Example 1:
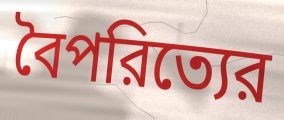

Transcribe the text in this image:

বৈপরিত্যের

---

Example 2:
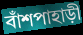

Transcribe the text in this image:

বাঁশপাহাড়ী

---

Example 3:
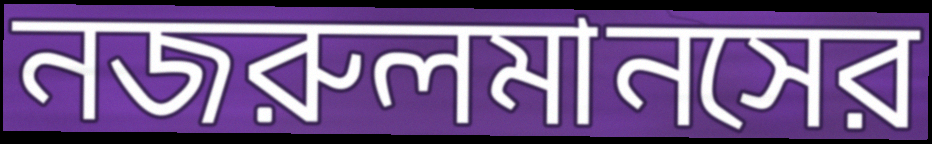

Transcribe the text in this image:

নজরুলমানসের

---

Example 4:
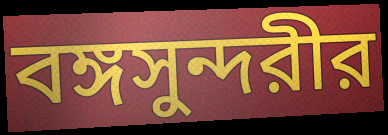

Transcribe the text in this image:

বঙ্গসুন্দরীর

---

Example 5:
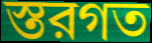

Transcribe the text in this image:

স্তরগত